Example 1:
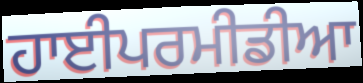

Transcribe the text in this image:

ਹਾਈਪਰਮੀਡੀਆ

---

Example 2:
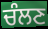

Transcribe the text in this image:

ਚੰਲਣ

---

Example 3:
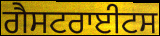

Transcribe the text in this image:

ਗੈਸਟਰਾਈਟਸ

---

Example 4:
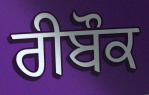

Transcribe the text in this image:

ਰੀਬੌਕ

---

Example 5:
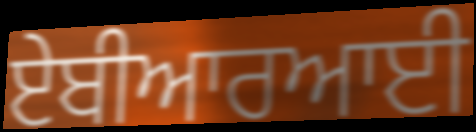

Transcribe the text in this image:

ਏਬੀਆਰਆਈ